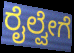
ರೈಲ್ವೇಗೆ